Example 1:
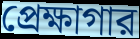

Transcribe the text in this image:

প্রেক্ষাগার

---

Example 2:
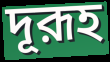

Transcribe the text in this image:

দূরূহ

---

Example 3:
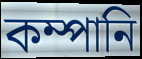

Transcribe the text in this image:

কম্পানি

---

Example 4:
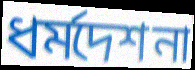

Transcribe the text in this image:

ধর্মদেশনা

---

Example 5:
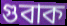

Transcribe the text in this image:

গুবাক